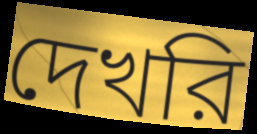
দেখরি